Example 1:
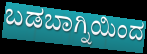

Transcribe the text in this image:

ಬಡಬಾಗ್ನಿಯಿಂದ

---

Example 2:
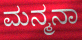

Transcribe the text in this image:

ಮನ್ಮನಾ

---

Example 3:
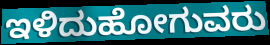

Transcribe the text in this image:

ಇಳಿದುಹೋಗುವರು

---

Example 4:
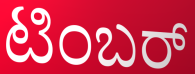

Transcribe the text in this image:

ಟಿಂಬರ್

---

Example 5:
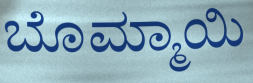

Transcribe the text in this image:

ಬೊಮ್ಮಾಯಿ